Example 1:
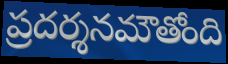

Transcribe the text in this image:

ప్రదర్శనమౌతోంది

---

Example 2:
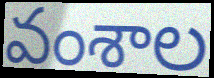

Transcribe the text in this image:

వంశాల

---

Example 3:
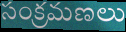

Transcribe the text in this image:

సంక్రమణలు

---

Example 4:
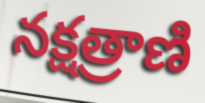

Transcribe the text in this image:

నక్షత్రాణి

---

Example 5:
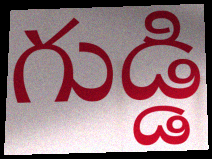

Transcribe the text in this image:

గుడ్డి